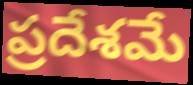
ప్రదేశమే